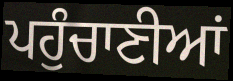
ਪਹੁੰਚਾਣੀਆਂ